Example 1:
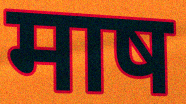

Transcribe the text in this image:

माष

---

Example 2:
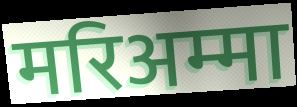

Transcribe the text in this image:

मरिअम्मा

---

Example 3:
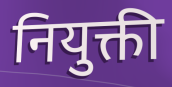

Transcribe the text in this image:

नियुक्ती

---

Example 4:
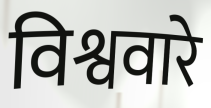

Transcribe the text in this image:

विश्ववारे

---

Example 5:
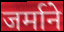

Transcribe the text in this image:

जर्माने